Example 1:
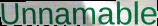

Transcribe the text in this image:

Unnamable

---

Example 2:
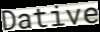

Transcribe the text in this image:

Dative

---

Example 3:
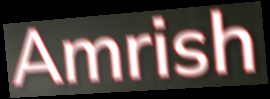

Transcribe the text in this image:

Amrish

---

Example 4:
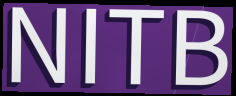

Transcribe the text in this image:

NITB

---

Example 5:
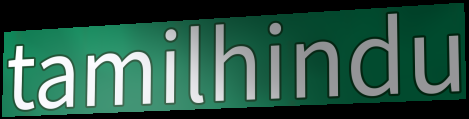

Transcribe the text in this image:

tamilhindu